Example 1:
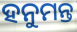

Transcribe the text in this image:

ହନୁମନ୍ତ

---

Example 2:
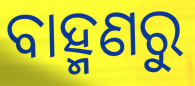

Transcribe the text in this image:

ବାହ୍ମଣରୁ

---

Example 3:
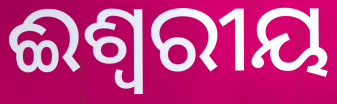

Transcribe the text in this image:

ଈଶ୍ବରୀୟ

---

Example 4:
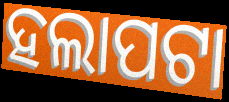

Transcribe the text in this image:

ହଲାପଟା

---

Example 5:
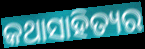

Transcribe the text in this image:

କଥାସାହିତ୍ୟର